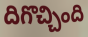
దిగొచ్చింది